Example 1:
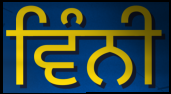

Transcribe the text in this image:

ਵਿੰਨੀ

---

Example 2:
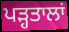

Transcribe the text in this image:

ਪੜ੍ਹਤਾਲਾਂ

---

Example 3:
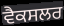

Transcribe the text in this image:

ਵੈਕਸਲਰ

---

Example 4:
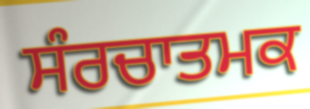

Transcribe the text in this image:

ਸੰਰਚਾਤਮਕ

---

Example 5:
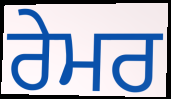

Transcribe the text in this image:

ਰੇਮਰ